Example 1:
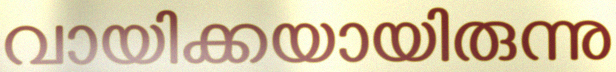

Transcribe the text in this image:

വായിക്കയായിരുന്നു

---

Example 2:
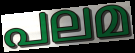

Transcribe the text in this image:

പലമ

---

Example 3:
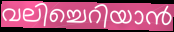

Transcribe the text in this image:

വലിച്ചെറിയാൻ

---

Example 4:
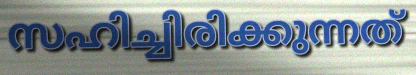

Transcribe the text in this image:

സഹിച്ചിരിക്കുന്നത്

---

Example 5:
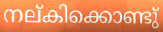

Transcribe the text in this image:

നല്കിക്കൊണ്ടു്